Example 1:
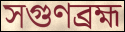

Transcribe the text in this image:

সগুণব্রহ্ম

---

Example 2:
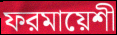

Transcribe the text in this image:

ফরমায়েশী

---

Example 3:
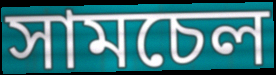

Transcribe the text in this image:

সামচেল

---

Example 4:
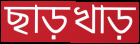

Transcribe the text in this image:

ছাড়খাড়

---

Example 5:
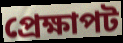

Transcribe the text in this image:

প্রেক্ষাপট